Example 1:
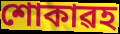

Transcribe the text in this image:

শোকাৱহ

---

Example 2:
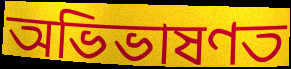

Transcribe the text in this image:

অভিভাষণত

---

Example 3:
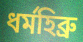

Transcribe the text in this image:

ধৰ্মহিব্ৰু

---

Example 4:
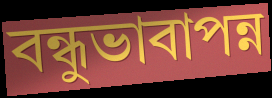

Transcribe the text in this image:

বন্ধুভাবাপন্ন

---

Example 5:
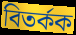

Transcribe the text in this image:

বিতৰ্কক